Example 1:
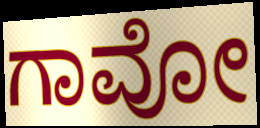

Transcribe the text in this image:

ಗಾವೋ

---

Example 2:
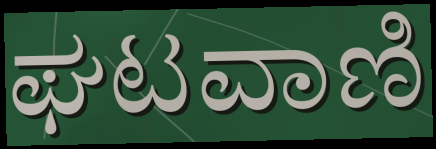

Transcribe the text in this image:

ಘಟವಾಣಿ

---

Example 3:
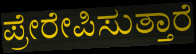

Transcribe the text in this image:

ಪ್ರೇರೇಪಿಸುತ್ತಾರೆ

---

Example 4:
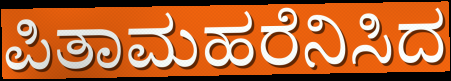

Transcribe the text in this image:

ಪಿತಾಮಹರೆನಿಸಿದ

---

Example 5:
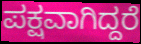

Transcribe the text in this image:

ಪಕ್ಷವಾಗಿದ್ದರೆ